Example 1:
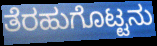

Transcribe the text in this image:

ತೆರಹುಗೊಟ್ಟನು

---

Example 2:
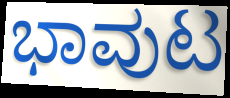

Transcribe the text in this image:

ಭಾವುಟ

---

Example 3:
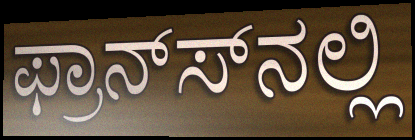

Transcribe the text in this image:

ಫ್ರಾನ್ಸ್‍ನಲ್ಲಿ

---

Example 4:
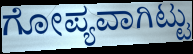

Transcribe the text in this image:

ಗೋಪ್ಯವಾಗಿಟ್ಟು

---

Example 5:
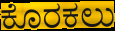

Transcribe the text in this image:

ಕೊರಕಲು